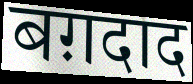
बग़दाद